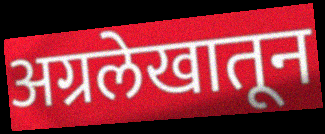
अग्रलेखातून